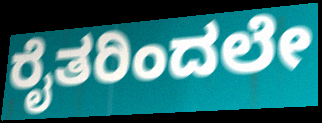
ರೈತರಿಂದಲೇ